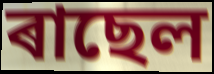
ৰাছেল